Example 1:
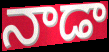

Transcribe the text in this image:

నాడా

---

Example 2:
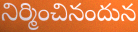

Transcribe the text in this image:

నిర్మించినందున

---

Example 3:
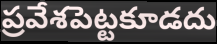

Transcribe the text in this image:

ప్రవేశపెట్టకూడదు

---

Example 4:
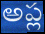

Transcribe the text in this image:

అప్ల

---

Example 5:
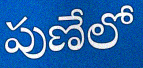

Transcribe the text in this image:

పుణేలో